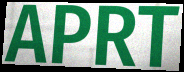
APRT